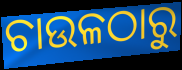
ଚାଉଳଠାରୁ